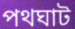
পথঘাট